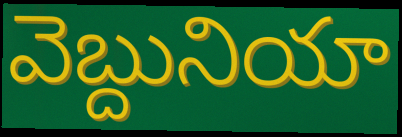
వెబ్దునియా